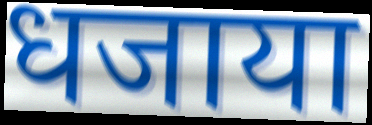
धजाया